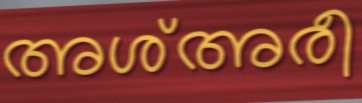
അശ്അരീ